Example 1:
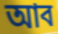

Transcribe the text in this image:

আব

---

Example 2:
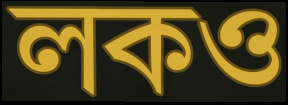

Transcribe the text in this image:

লকও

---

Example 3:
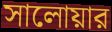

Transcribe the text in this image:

সালোয়ার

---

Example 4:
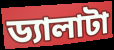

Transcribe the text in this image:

ড্যালাটা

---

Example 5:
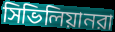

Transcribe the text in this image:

সিভিলিয়ানরা